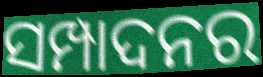
ସମ୍ପାଦନର